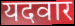
यदवार